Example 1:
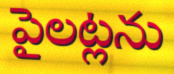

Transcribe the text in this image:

పైలట్లను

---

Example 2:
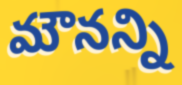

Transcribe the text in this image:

మౌనన్ని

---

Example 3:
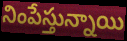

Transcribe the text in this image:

నింపేస్తున్నాయి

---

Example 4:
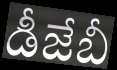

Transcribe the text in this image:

డీజేబీ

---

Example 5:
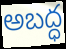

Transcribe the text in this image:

అబద్ధ